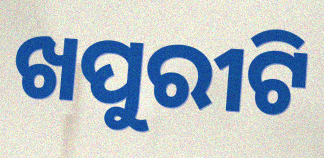
ଖପୁରୀଟି